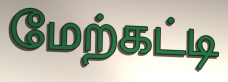
மேற்கட்டி